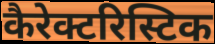
कैरेक्टरिस्टिक